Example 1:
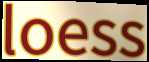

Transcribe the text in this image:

loess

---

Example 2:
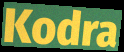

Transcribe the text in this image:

Kodra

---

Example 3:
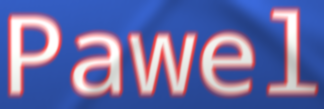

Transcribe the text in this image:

Pawel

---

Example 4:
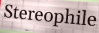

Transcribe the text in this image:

Stereophile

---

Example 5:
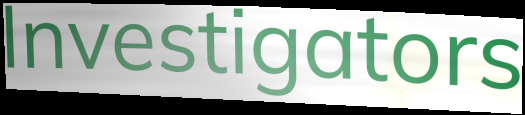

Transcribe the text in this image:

Investigators